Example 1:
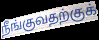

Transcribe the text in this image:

நீங்குவதற்குக்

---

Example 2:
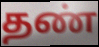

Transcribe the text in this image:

தண்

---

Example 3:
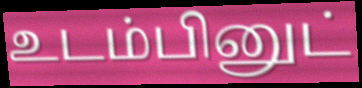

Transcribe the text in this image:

உடம்பினுட்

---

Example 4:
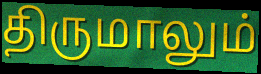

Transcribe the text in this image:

திருமாலும்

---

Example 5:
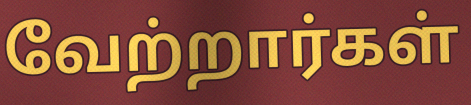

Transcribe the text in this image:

வேற்றார்கள்